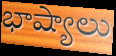
భాష్యాలు